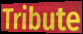
Tribute